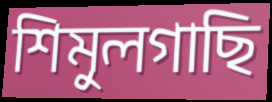
শিমুলগাছি